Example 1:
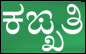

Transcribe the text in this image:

ಕಙ್ಖತಿ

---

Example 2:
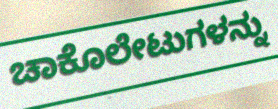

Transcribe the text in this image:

ಚಾಕೊಲೇಟುಗಳನ್ನು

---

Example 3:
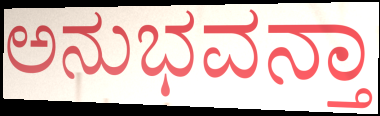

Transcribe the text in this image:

ಅನುಭವನ್ತಾ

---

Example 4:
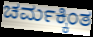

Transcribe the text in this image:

ಚರ್ಮಕ್ಕಿಂತ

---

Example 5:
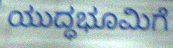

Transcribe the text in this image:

ಯುದ್ಧಭೂಮಿಗೆ